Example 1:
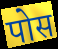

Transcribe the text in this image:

पोस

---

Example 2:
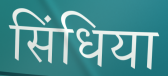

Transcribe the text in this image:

सिंधिया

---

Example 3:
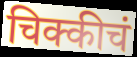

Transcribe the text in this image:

चिक्कीचं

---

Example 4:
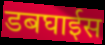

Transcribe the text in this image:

डबघाईस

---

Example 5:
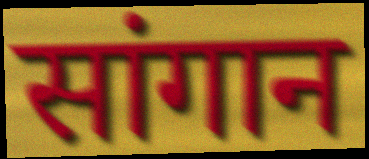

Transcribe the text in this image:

सांगान